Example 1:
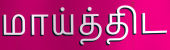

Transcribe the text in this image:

மாய்த்திட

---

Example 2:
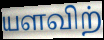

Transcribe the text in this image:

யளவிற்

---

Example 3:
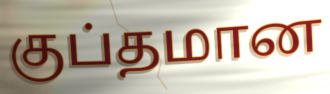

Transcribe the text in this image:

குப்தமான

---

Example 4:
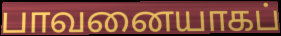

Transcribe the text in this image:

பாவனையாகப்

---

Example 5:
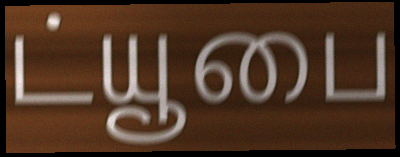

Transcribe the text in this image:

ட்யூபை